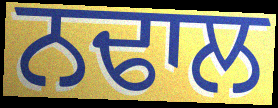
ਨਢਾਲ